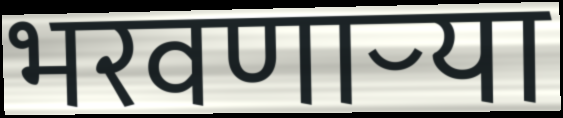
भरवणाऱ्या